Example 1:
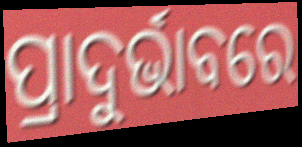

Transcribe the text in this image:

ପ୍ରାଦୁର୍ଭାବରେ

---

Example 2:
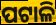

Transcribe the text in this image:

ପଟାଳି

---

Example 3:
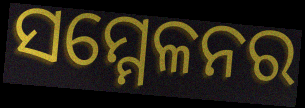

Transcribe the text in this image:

ସମ୍ମେଳନର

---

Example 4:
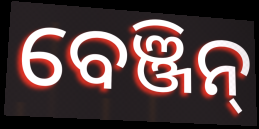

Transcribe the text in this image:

ବେଞ୍ଜିନ୍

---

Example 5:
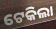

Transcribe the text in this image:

ଟେକିଲା